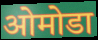
ओमोडा